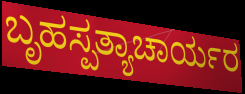
ಬೃಹಸ್ಪತ್ಯಾಚಾರ್ಯರ